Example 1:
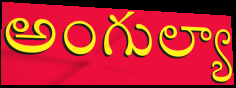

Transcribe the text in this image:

అంగుల్యా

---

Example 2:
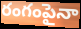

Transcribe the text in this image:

రంగంపైనా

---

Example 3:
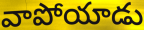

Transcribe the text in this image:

వాపోయాడు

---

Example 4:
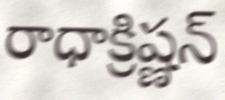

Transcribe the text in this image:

రాధాక్రిష్ణన్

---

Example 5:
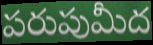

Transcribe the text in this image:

పరుపుమీద